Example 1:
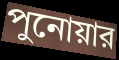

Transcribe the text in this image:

পুনোয়ার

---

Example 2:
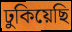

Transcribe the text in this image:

ঢুকিয়েছি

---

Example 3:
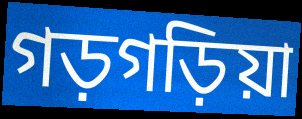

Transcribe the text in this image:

গড়গড়িয়া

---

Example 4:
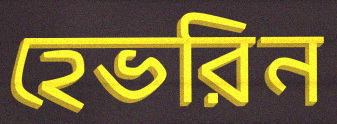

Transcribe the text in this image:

হেভরিন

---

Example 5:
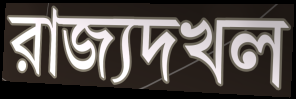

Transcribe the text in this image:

রাজ্যদখল